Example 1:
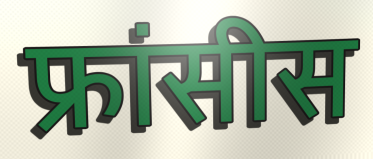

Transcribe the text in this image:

फ्रांसीस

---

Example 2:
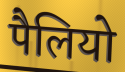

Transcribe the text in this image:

पैलियो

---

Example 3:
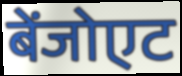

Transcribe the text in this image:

बेंजोएट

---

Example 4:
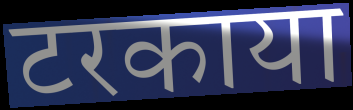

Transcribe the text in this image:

टरकाया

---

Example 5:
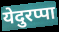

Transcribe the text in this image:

येदुरप्पा